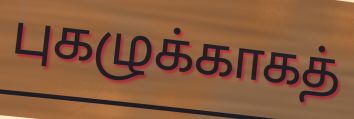
புகழுக்காகத்